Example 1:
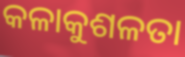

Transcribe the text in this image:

କଳାକୁଶଳତା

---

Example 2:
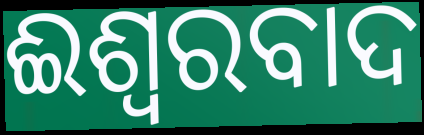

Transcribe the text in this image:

ଈଶ୍ୱରବାଦ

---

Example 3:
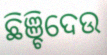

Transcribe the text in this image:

ଛିଞ୍ଚିଦେଉ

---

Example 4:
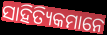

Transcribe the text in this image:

ସାହିତ୍ୟିକମାନେ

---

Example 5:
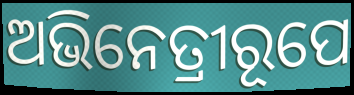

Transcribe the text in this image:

ଅଭିନେତ୍ରୀରୂପେ